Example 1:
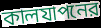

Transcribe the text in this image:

কালযাপনের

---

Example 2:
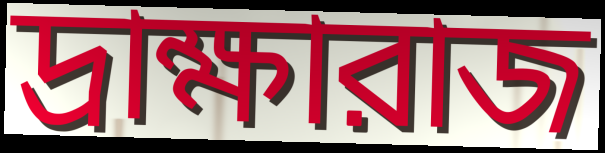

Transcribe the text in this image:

দ্রাক্ষারাজ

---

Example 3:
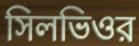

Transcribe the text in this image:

সিলভিওর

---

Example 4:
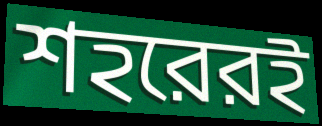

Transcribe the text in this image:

শহরেরই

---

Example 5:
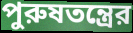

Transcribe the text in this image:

পুরুষতন্ত্রের